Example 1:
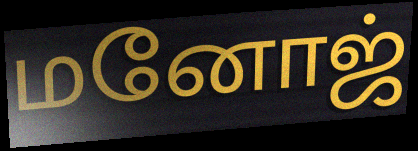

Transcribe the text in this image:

மனோஜ்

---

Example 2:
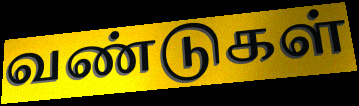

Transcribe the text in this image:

வண்டுகள்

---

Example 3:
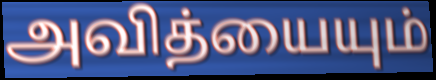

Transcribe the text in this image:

அவித்யையும்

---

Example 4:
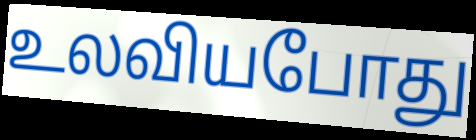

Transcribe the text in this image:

உலவியபோது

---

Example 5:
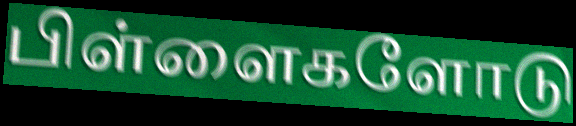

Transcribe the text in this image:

பிள்ளைகளோடு